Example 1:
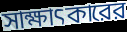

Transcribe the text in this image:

সাক্ষাৎকারের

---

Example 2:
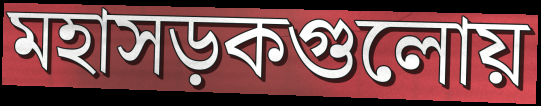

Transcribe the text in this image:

মহাসড়কগুলোয়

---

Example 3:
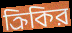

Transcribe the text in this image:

ক্রিকির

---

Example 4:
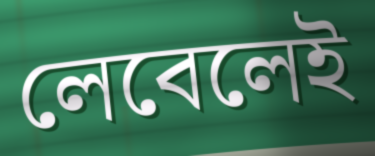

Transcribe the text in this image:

লেবেলেই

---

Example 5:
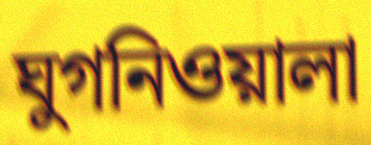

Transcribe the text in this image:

ঘুগনিওয়ালা